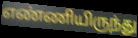
எண்ணியிருந்து